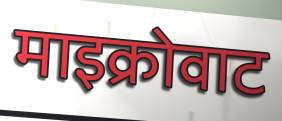
माइक्रोवाट